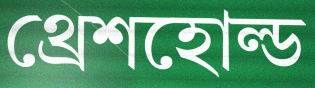
থ্রেশহোল্ড